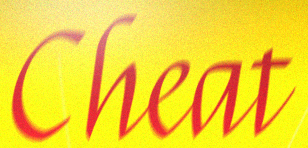
Cheat